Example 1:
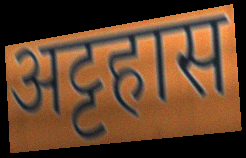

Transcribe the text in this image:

अट्टहास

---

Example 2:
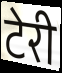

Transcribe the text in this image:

टेरी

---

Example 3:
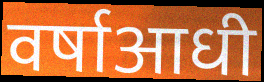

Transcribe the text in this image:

वर्षाआधी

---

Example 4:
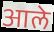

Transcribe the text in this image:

आले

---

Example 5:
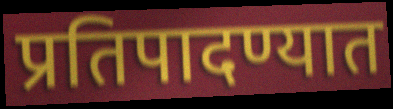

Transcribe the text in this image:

प्रतिपादण्यात